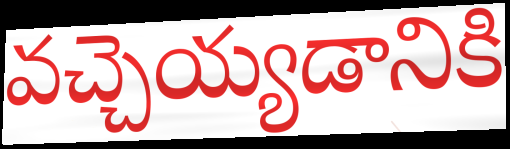
వచ్చెయ్యడానికి